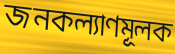
জনকল্যাণমূলক